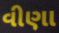
વીણા